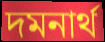
দমনার্থ